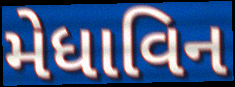
મેધાવિન